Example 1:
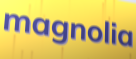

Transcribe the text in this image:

magnolia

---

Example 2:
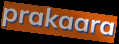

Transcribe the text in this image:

prakaara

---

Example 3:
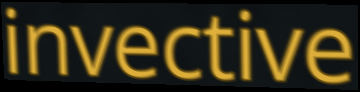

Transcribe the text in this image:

invective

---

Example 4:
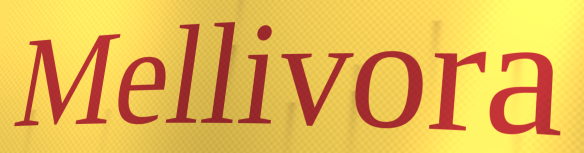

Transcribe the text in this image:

Mellivora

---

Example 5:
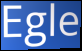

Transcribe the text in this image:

Egle